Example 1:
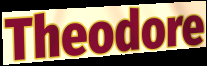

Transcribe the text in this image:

Theodore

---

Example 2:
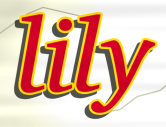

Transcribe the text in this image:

lily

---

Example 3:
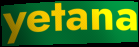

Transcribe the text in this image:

yetana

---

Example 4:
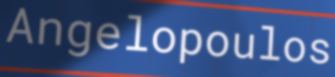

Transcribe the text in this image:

Angelopoulos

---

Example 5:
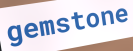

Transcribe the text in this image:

gemstone